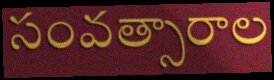
సంవత్సారాల